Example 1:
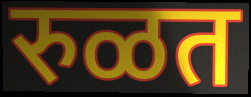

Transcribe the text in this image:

रुळत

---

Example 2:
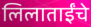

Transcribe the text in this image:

लिलाताईंचे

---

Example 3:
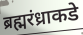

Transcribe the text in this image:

ब्रह्मरंध्राकडे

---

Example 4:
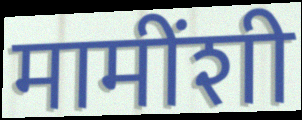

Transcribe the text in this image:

मामींशी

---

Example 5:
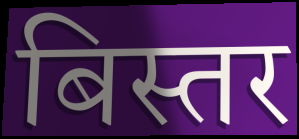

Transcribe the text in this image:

बिस्तर